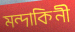
মন্দাকিনী